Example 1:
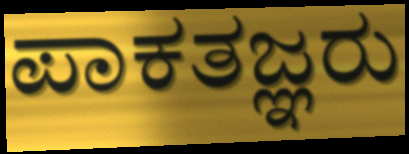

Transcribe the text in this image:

ಪಾಕತಜ್ಞರು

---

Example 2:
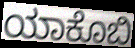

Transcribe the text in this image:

ಯಾಕೊಬಿ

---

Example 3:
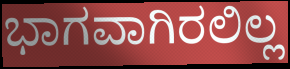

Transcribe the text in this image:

ಭಾಗವಾಗಿರಲಿಲ್ಲ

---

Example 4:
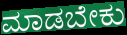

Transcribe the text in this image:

ಮಾಡಬೇಕು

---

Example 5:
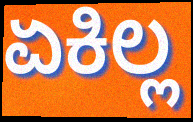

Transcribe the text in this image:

ಏಕಿಲ್ಲ